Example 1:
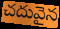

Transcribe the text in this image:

చదువైన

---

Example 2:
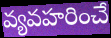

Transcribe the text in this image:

వ్యవహరించే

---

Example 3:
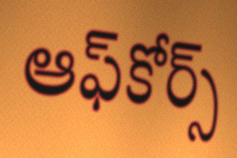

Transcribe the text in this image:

ఆఫ్‌కోర్స్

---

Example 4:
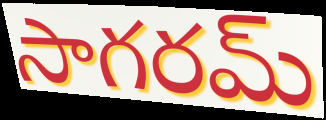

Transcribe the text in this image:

సాగరమ్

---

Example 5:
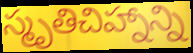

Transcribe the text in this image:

స్మృతిచిహ్నాన్ని